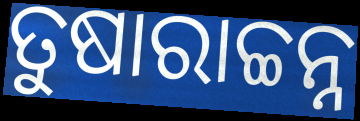
ତୁଷାରାଚ୍ଚନ୍ନ